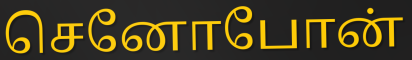
செனோபோன்